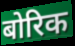
बोरिक